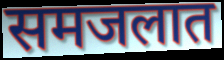
समजलात